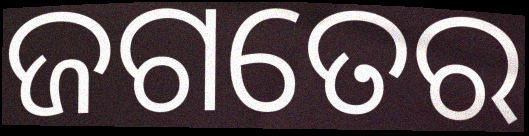
ଜଗତେର